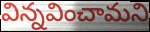
విన్నవించామని